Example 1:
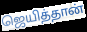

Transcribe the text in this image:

ஜெயித்தான்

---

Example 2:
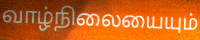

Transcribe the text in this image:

வாழ்நிலையையும்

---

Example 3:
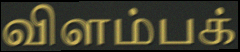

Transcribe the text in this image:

விளம்பக்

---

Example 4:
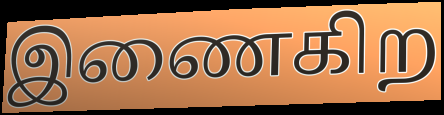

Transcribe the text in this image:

இணைகிற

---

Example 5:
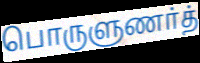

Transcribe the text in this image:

பொருளுணர்த்